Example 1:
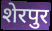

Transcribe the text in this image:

शेरपुर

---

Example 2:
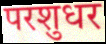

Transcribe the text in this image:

परशुधर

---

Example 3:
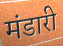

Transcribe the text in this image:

मंडारी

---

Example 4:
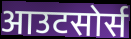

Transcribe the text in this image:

आउटसोर्स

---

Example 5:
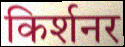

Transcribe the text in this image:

किर्शनर